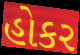
હોકર